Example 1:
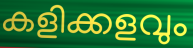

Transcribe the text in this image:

കളിക്കളവും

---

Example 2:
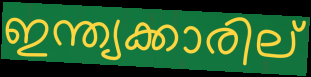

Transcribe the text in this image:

ഇന്ത്യക്കാരില്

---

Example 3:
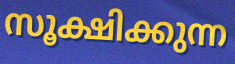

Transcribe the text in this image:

സൂക്ഷിക്കുന്ന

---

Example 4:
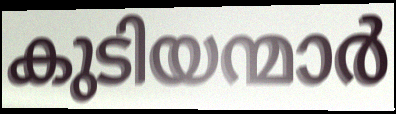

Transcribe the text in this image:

കുടിയന്മാർ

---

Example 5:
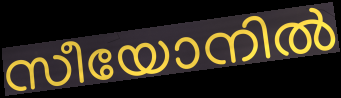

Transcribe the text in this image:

സീയോനിൽ